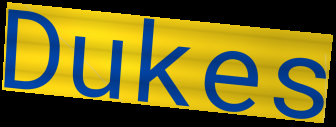
Dukes